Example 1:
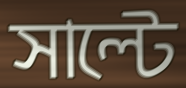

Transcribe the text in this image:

সাল্টে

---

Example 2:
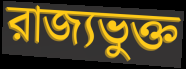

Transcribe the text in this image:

রাজ্যভুক্ত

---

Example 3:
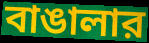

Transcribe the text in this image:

বাঙালার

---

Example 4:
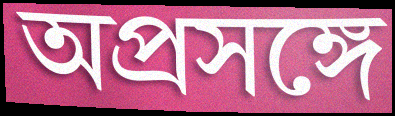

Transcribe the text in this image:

অপ্রসঙ্গে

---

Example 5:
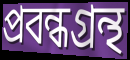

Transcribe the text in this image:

প্রবন্ধগ্রন্থ